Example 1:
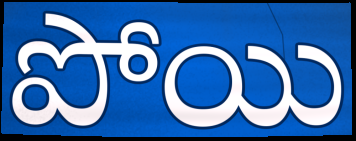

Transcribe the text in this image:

పోయి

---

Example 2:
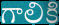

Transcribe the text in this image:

గాలికి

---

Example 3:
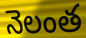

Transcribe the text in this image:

నెలంత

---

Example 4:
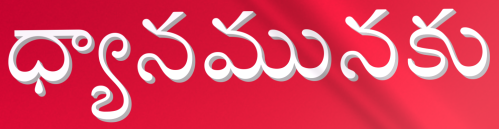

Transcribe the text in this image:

ధ్యానమునకు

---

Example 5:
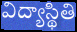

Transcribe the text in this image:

విద్యాస్థితి